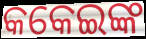
କକେଇଙ୍କ